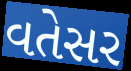
વતેસર